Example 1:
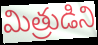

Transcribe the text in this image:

మిత్రుడిని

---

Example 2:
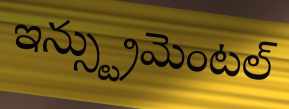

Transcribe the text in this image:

ఇన్స్ట్రుమెంటల్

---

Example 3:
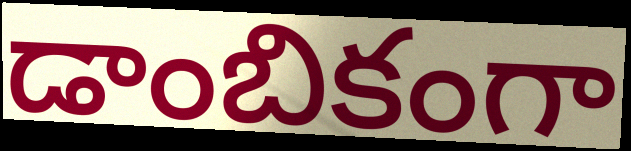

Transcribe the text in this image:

డాంబికంగా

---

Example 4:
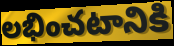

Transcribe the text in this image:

లభించటానికి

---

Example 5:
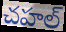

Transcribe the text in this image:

చహల్